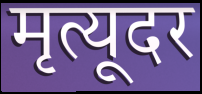
मृत्यूदर